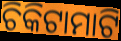
ଚିକିଟାମାଟି